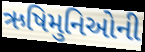
ઋષિમુનિઓની